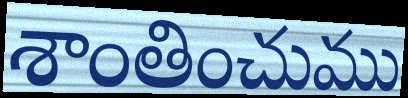
శాంతించుము